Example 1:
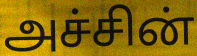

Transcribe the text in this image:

அச்சின்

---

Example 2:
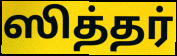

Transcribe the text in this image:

ஸித்தர்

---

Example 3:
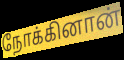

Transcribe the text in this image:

நோக்கினான்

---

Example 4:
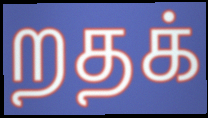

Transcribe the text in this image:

றதக்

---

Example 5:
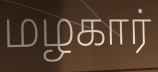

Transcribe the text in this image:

மழகார்